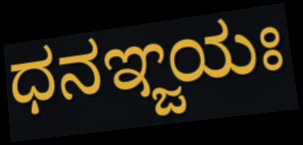
ಧನಞ್ಜಯಃ